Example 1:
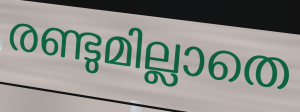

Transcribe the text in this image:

രണ്ടുമില്ലാതെ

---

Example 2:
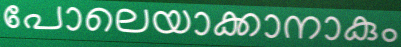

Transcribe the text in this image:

പോലെയാക്കാനാകും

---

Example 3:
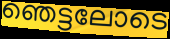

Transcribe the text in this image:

ഞെട്ടലോടെ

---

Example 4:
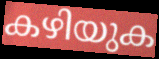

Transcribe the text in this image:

കഴിയുക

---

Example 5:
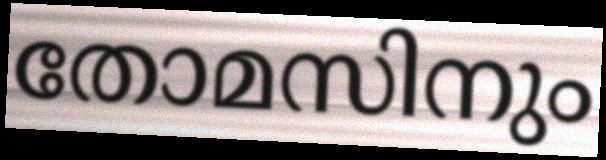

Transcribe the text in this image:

തോമസിനും